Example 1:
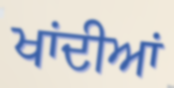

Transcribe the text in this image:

ਖਾਂਦੀਆਂ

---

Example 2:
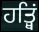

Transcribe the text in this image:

ਹਤ੍ਥਿਂ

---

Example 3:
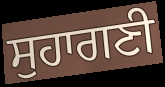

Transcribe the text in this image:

ਸੁਹਾਗਣੀ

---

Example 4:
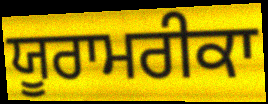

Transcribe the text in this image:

ਯੂਰਾਮਰੀਕਾ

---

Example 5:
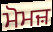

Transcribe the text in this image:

ਮੋਮਜ਼